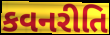
કવનરીતિ